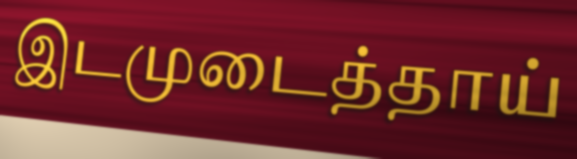
இடமுடைத்தாய்